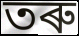
তৰু